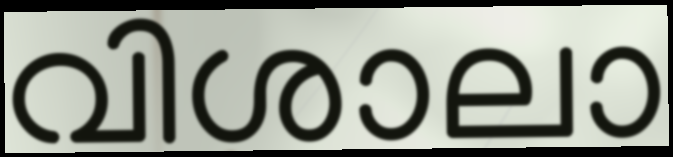
വിശാലാ